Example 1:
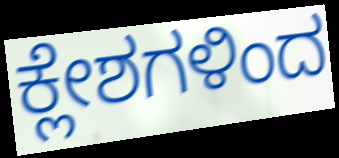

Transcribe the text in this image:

ಕ್ಲೇಶಗಳಿಂದ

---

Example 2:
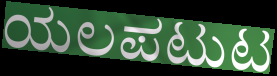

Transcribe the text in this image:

ಯಲಪಟುಟ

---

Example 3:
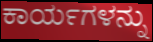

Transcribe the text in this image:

ಕಾರ್ಯಗಳನ್ನು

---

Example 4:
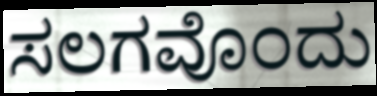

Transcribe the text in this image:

ಸಲಗವೊಂದು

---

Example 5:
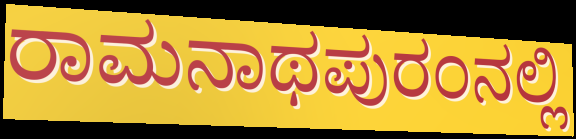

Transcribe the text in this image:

ರಾಮನಾಥಪುರಂನಲ್ಲಿ